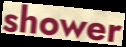
shower